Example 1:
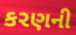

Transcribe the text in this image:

કરણની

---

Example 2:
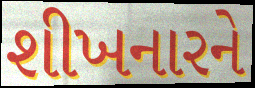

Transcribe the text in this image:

શીખનારને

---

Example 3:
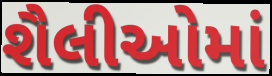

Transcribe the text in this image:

શૈલીઓમાં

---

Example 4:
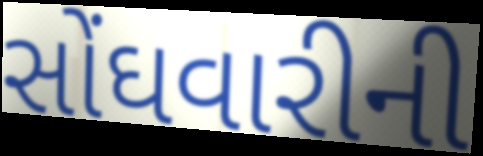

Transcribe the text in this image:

સોંઘવારીની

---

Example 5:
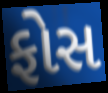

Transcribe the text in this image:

ફોસ